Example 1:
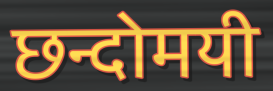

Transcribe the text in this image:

छन्दोमयी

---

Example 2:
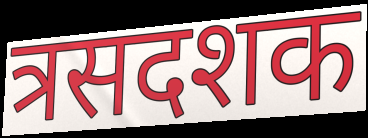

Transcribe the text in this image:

त्रसदशक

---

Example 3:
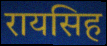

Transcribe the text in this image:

रायसिह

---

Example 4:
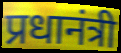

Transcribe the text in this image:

प्रधानंत्री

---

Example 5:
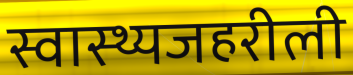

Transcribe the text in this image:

स्वास्थ्यजहरीली